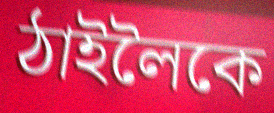
ঠাইলৈকে